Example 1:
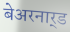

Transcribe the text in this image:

बेअरनार्ड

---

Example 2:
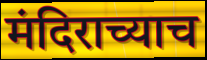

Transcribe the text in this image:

मंदिराच्याच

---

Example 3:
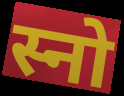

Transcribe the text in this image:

स्नो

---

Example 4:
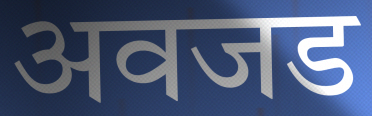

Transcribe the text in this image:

अवजड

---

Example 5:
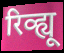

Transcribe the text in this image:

रिव्ह्यू